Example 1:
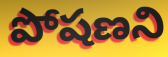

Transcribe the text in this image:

పోషణని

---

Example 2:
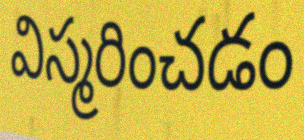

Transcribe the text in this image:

విస్మరించడం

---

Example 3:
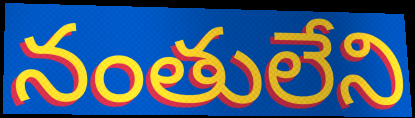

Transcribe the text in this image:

నంతులేని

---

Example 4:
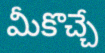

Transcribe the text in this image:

మీకొచ్చే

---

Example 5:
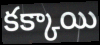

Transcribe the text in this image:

కక్కాయి